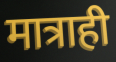
मात्राही